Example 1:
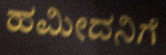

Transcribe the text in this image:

ಹಮೀದನಿಗೆ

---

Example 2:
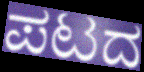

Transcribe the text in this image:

ಪಟದ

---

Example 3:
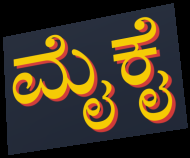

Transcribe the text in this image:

ಮೈಕೈ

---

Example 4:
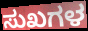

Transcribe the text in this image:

ಸುಖಗಳ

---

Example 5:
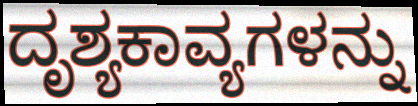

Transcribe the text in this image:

ದೃಶ್ಯಕಾವ್ಯಗಳನ್ನು